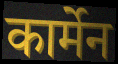
कार्मेन